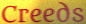
Creeds